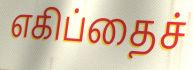
எகிப்தைச்